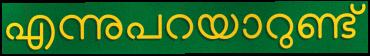
എന്നുപറയാറുണ്ട്